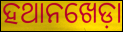
ହଥାନଖେଡ଼ା